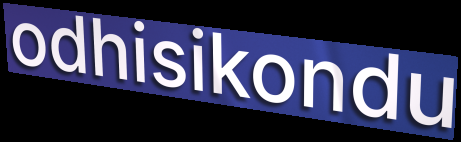
odhisikondu